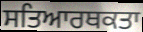
ਸਤਿਆਰਥਕਤਾ